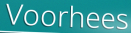
Voorhees